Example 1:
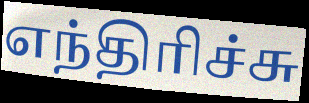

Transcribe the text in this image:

எந்திரிச்சு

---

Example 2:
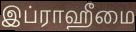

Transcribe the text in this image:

இப்ராஹீமை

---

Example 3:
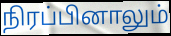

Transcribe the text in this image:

நிரப்பினாலும்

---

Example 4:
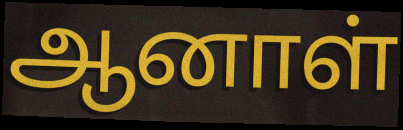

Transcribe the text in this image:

ஆனாள்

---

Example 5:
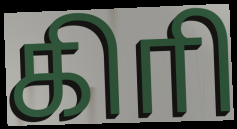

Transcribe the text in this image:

கிரி